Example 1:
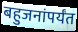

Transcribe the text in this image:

बहुजनांपर्यंत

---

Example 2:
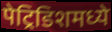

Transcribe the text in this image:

पेट्रिडिशमध्ये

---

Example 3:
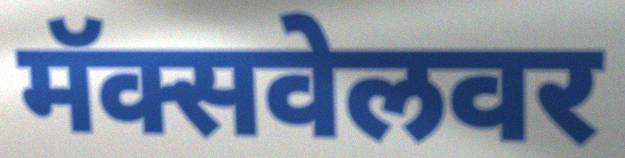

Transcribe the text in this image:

मॅक्सवेलवर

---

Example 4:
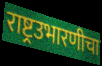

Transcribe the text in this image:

राष्ट्रउभारणीचा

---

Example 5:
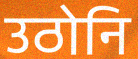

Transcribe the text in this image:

उठोनि